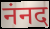
नंनद